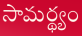
సామర్థ్యం